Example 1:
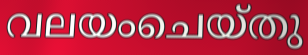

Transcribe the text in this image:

വലയംചെയ്തു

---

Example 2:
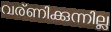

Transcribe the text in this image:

വര്ണിക്കുന്നില്ല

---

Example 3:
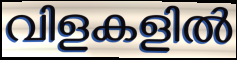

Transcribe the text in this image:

വിളകളിൽ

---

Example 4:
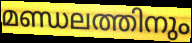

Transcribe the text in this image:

മണ്ഡലത്തിനും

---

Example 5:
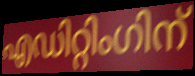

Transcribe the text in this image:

എഡിറ്റിംഗിന്